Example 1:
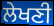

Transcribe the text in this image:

ਲੇਖਣੀ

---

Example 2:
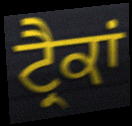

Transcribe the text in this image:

ਟ੍ਰੈਕਾਂ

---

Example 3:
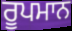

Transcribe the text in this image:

ਰੂਪਮਾਨ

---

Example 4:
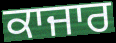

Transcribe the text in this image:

ਕਾਜਾਰ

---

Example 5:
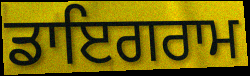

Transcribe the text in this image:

ਡਾਇਗਰਾਮ